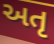
અતૃ